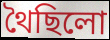
থৈছিলো